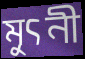
মুৎনী